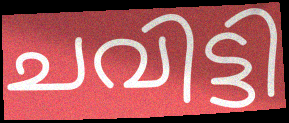
ചവിട്ടി